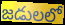
జడులలో